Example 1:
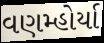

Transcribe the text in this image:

વણમ્હોર્યા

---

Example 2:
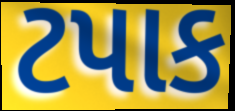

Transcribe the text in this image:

ટપાક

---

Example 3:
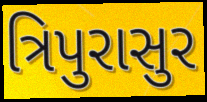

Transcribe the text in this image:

ત્રિપુરાસુર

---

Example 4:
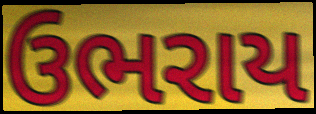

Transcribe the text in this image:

ઉભરાય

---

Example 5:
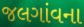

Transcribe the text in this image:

જલગાંવના